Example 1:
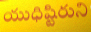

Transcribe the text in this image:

యుధిష్టిరుని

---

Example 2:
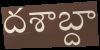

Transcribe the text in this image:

దశాబ్దా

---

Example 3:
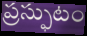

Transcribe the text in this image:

ప్రస్ఫుటం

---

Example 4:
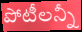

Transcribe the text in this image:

పోటీలన్నీ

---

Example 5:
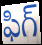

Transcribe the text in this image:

ఫిగ్